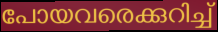
പോയവരെക്കുറിച്ച്